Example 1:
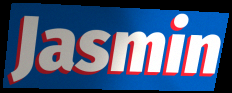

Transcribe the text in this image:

Jasmin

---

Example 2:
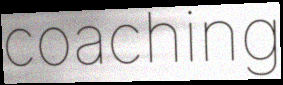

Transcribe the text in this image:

coaching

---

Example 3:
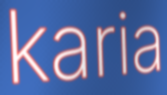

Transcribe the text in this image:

karia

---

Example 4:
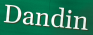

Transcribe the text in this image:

Dandin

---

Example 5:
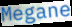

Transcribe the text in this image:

Megane